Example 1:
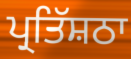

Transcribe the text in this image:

ਪ੍ਰਤਿੱਸ਼ਠਾ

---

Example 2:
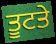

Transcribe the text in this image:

ਤੂਟਤੇ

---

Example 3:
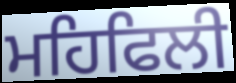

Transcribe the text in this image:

ਮਹਿਫਿਲੀ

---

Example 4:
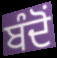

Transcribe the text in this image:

ਬੰਦੋਂ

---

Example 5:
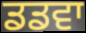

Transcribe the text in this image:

ਡਡਵਾ